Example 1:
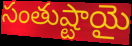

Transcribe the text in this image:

సంతుష్టాయై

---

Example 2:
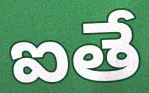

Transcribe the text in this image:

ఐతే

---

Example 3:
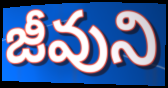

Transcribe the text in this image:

జీవుని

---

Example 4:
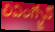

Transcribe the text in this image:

లివింగ్స్టోన్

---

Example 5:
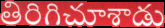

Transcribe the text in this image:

తిరిగిచూశాడు